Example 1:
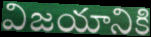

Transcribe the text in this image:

విజయానికి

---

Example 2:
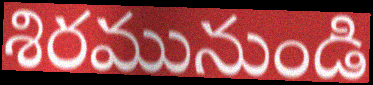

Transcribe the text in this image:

శిరమునుండి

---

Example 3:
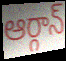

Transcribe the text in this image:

ఆర్గాన్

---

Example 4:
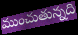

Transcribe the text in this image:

ముంచుతున్నది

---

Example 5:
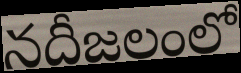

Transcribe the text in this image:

నదీజలంలో